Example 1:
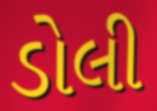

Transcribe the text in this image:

ડોલી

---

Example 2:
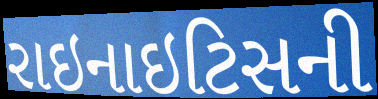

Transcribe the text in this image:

રાઇનાઇટિસની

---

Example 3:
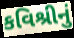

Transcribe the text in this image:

કવિશ્રીનું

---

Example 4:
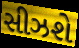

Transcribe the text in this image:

સીઝશે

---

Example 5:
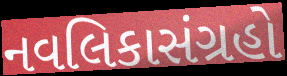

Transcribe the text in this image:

નવલિકાસંગ્રહો